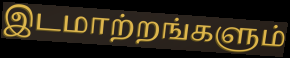
இடமாற்றங்களும்